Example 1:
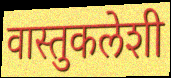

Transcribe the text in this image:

वास्तुकलेशी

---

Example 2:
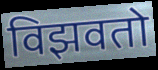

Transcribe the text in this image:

विझवतो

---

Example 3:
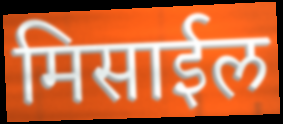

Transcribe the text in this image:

मिसाईल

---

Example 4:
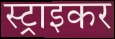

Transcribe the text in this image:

स्ट्राइकर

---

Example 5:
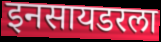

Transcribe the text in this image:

इनसायडरला